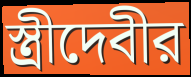
স্ত্রীদেবীর